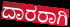
ದಾರರಾಗಿ